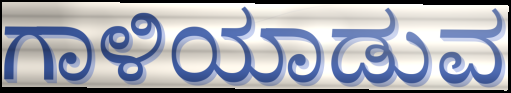
ಗಾಳಿಯಾಡುವ